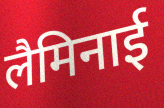
लैमिनाई